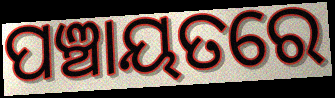
ପଞ୍ଚାୟତରେ